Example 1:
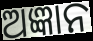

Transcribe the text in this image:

ଅଜ୍ଞାନ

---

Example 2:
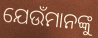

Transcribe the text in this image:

ଯେଉଁମାନଙ୍କୁ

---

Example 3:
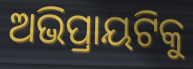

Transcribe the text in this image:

ଅଭିପ୍ରାୟଟିକୁ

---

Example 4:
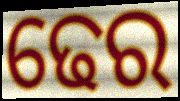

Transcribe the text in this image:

ଢେର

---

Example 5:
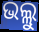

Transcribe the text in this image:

ଭଲ୍ଲୁ